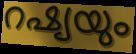
റഷ്യയും